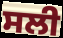
ਸਲੀ